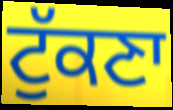
ਟੁੱਕਣਾ